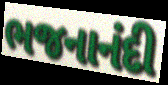
ભજનાનંદી